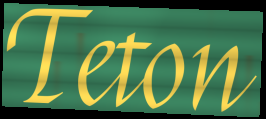
Teton